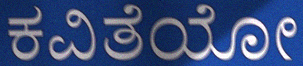
ಕವಿತೆಯೋ